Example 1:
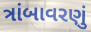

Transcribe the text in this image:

ત્રાંબાવરણું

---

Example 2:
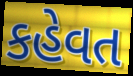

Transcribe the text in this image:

કહેવત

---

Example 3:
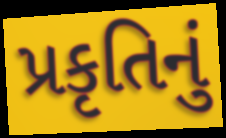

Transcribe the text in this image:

પ્રકૃતિનું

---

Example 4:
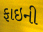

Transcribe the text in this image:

ફાઇની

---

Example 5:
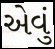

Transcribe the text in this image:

એવું